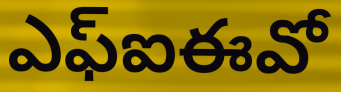
ఎఫ్ఐఈవో